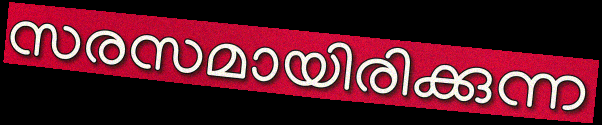
സരസമായിരിക്കുന്ന